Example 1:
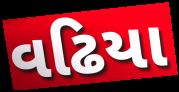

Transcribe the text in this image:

વઢિયા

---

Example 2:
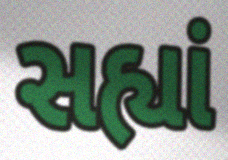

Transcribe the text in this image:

સહ્યાં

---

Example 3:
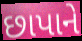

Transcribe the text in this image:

છાપાને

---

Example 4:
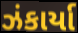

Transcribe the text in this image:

ઝંકાર્યા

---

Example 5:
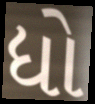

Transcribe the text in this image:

દ્યો